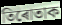
তিৰোতাক